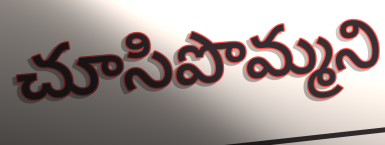
చూసిపొమ్మని